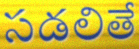
సడలితే